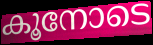
കൂനോടെ